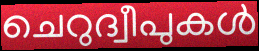
ചെറുദ്വീപുകൾ